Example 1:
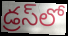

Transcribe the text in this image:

డ్రస్‌లో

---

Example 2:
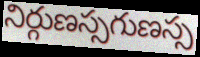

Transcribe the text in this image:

నిర్గుణస్సగుణస్స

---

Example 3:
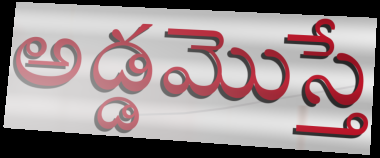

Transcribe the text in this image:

అడ్డమొస్తే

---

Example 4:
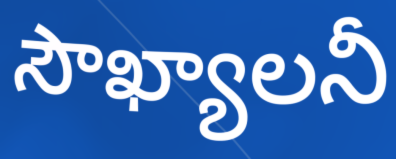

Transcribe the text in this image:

సౌఖ్యాలనీ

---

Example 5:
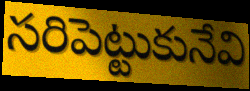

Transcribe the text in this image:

సరిపెట్టుకునేవి